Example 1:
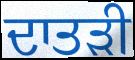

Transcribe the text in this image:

ਦਾਤੜੀ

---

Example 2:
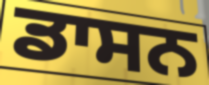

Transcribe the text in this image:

ਡਾਸਨ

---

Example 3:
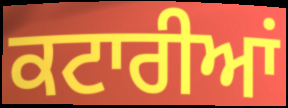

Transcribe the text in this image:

ਕਟਾਰੀਆਂ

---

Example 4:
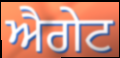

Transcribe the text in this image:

ਐਗੇਟ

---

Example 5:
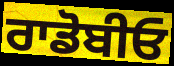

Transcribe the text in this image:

ਰਾਡੋਬੀਓ